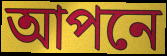
আপনে